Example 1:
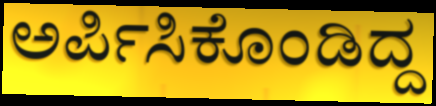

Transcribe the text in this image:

ಅರ್ಪಿಸಿಕೊಂಡಿದ್ದ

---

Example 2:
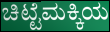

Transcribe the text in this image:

ಚಿಟ್ಟೆಮಕ್ಕಿಯ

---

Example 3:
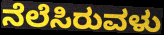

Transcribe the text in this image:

ನೆಲೆಸಿರುವಳು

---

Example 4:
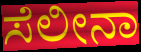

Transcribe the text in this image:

ಸೆಲೀನಾ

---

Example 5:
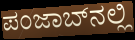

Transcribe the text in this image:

ಪಂಜಾಬ್‌ನಲ್ಲಿ